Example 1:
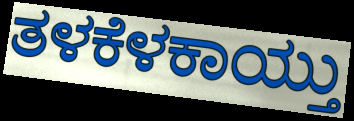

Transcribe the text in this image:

ತಳಕೆಳಕಾಯ್ತು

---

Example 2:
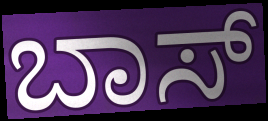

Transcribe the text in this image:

ಬಾಸ್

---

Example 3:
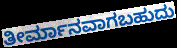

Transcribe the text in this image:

ತೀರ್ಮಾನವಾಗಬಹುದು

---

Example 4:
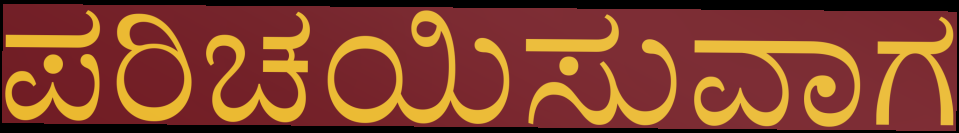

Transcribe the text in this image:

ಪರಿಚಯಿಸುವಾಗ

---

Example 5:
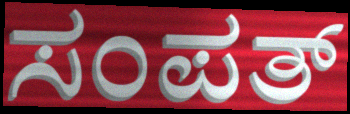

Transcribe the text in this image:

ಸಂಪತ್